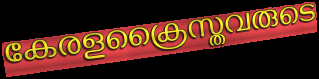
കേരളക്രൈസ്തവരുടെ